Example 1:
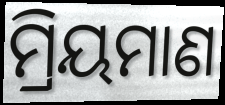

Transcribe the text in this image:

ମ୍ରିୟମାଣ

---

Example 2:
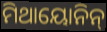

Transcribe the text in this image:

ମିଥାୟୋନିନ୍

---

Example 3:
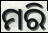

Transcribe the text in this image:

ମରି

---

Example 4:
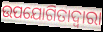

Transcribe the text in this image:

ଉପଯୋଗିତାଦ୍ୱାରା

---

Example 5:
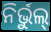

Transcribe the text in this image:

ନିର୍ଭୁଲ୍